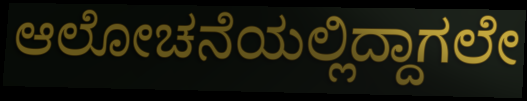
ಆಲೋಚನೆಯಲ್ಲಿದ್ದಾಗಲೇ